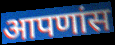
आपणांस